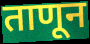
ताणून